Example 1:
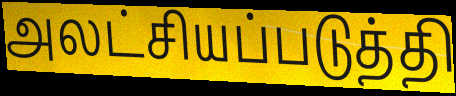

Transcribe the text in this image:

அலட்சியப்படுத்தி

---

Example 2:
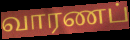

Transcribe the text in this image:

வாரணப்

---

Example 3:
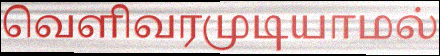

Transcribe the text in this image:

வெளிவரமுடியாமல்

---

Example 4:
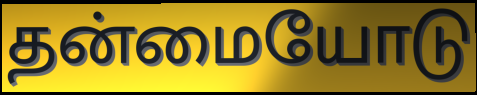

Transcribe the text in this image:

தன்மையோடு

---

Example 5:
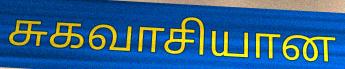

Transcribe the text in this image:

சுகவாசியான